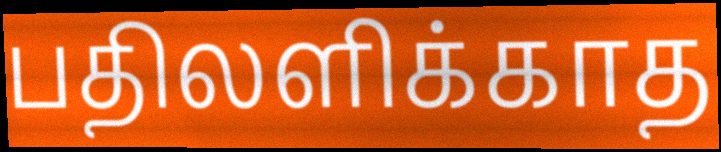
பதிலளிக்காத